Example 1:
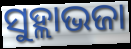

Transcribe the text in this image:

ସୁହ୍ଲାଭଜା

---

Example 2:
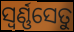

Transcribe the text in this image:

ସ୍ଵର୍ଣ୍ଣସେତୁ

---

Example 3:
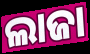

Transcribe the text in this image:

ଲାଜା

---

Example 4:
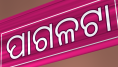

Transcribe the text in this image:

ପାଗଳଟା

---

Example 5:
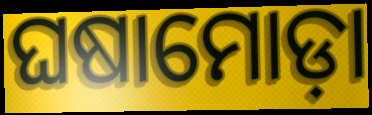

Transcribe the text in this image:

ଘଷାମୋଡ଼ା